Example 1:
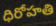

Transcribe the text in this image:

ధిరోహతి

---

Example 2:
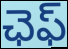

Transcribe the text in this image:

ఛెఫ్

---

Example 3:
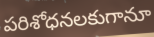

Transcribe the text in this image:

పరిశోధనలకుగానూ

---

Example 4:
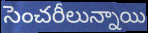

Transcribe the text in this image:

సెంచరీలున్నాయి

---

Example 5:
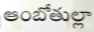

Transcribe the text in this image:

ఆంబోతుల్లా